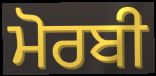
ਮੋਰਬੀ